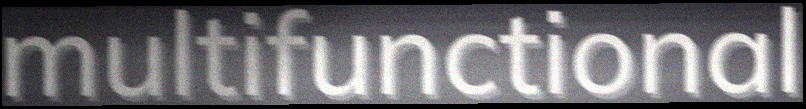
multifunctional